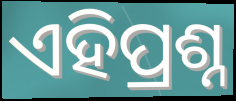
ଏହିପ୍ରଶ୍ନ